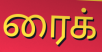
ரைக்